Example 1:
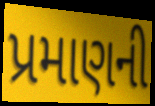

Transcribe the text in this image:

પ્રમાણની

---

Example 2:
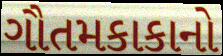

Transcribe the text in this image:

ગૌતમકાકાનો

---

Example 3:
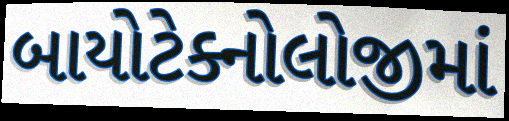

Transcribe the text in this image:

બાયોટેક્નોલોજીમાં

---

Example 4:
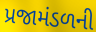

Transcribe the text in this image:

પ્રજામંડળની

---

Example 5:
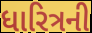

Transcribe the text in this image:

ધારિત્રની